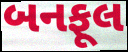
બનફૂલ